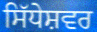
ਸਿੱਧੇਸ਼ਵਰ